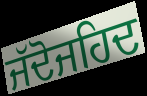
ਜੱਦੋਜਹਿਦ